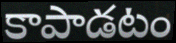
కాపాడటం